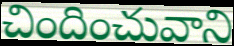
చిందించువాని